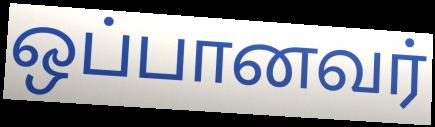
ஒப்பானவர்